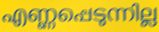
എണ്ണപ്പെടുന്നില്ല